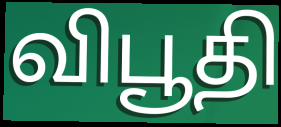
விபூதி